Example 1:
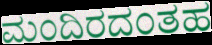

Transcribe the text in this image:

ಮಂದಿರದಂತಹ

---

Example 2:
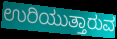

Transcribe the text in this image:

ಉರಿಯುತ್ತಾರುವ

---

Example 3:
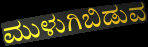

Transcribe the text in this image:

ಮುಳುಗಿಬಿಡುವ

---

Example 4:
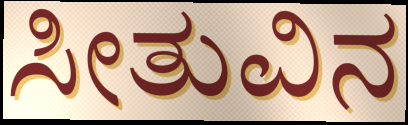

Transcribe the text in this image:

ಸೀತುವಿನ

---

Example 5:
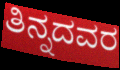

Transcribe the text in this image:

ತಿನ್ನದವರ